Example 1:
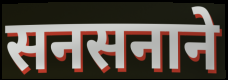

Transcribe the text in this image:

सनसनाने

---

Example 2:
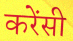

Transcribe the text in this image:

करेंसी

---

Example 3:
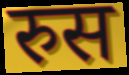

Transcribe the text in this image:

रुस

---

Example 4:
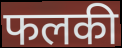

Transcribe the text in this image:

फलकी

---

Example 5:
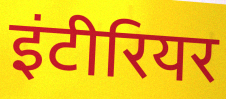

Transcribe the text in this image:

इंटीरियर